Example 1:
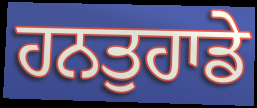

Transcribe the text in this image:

ਹਨਤੁਹਾਡੇ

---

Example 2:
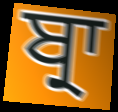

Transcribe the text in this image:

ਬ੍ਰਾ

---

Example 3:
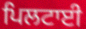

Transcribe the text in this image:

ਪਿਲਟਾਈ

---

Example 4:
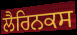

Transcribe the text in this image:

ਲੈਰਿਨਕਸ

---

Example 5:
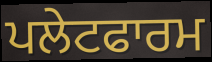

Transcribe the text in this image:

ਪਲੇਟਫਾਰਮ